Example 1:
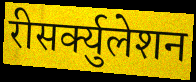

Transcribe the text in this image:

रीसर्क्युलेशन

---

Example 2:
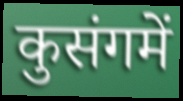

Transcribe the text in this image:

कुसंगमें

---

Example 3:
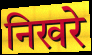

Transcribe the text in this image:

निखरे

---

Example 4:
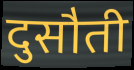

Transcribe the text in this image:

दुसौती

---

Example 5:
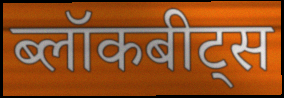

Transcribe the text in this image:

ब्लॉकबीट्स